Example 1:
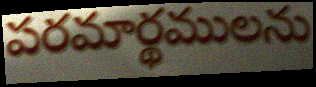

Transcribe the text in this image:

పరమార్థములను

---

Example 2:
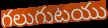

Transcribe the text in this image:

గలుగుటయు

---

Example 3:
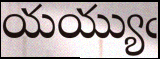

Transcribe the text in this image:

యయ్యుఁ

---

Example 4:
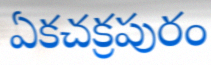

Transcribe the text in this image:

ఏకచక్రపురం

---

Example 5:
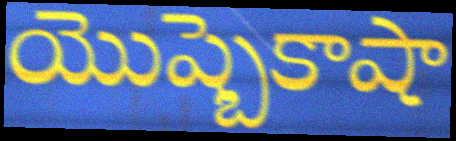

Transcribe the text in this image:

యొష్బెకాషా